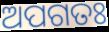
ଅପଗତଃ